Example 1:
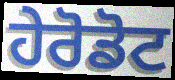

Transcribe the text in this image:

ਹੇਰੋਡੋਟ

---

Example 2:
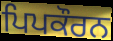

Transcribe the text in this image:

ਪਿਪਕੌਰਨ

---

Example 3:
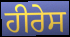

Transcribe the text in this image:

ਹੀਰੇਸ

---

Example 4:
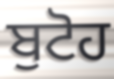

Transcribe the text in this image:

ਬੁਟੋਹ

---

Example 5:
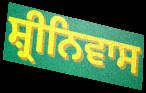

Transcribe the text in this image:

ਸ਼੍ਰੀਨਿਵਾਸ